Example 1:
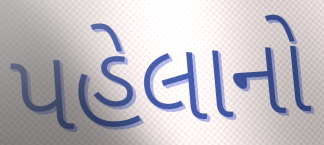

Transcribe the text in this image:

પહેલાનો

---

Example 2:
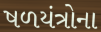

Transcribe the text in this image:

ષળયંત્રોના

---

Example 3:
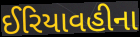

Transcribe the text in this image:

ઈરિયાવહીના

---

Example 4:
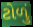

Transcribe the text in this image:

ટોળું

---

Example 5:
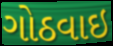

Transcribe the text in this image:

ગોઠવાઇ